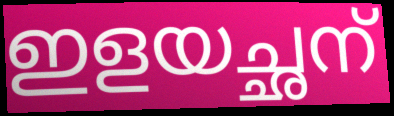
ഇളയച്ഛന്